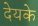
देयके